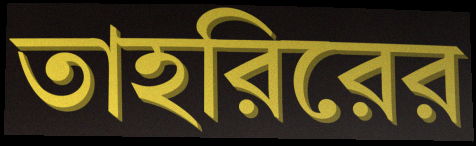
তাহরিরের